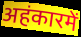
अहंकारमें